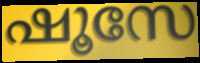
ഷൂസേ